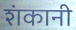
शंकानी